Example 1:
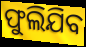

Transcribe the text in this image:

ଫୁଲିଯିବ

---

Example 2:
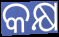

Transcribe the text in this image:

କକ୍ଷ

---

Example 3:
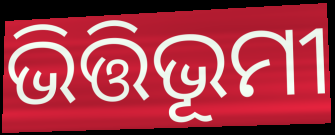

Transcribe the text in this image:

ଭିତ୍ତିଭୂମୀ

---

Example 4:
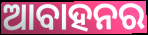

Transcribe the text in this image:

ଆବାହନର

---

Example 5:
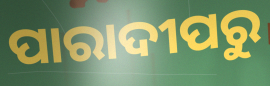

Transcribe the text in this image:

ପାରାଦୀପରୁ